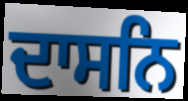
ਦਾਸਨਿ